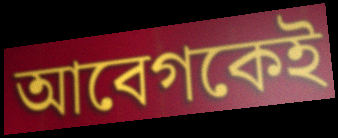
আবেগকেই